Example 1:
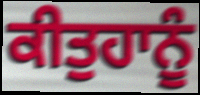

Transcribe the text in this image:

ਕੀਤੁਹਾਨੂੰ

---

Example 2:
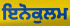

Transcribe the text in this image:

ਇਨੋਕੁਲਮ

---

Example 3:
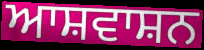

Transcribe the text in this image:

ਆਸ਼ਵਾਸ਼ਨ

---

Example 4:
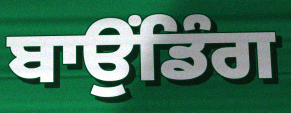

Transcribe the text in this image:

ਬਾਉਂਡਿੰਗ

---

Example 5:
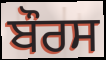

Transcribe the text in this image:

ਬੌਰਸ